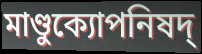
মাণ্ডুক্যোপনিষদ্